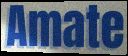
Amate